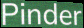
Pinder